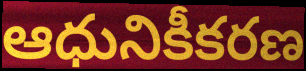
ఆధునికీకరణ